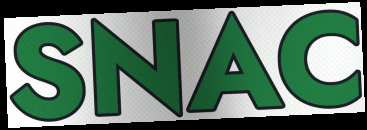
SNAC